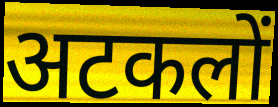
अटकलों